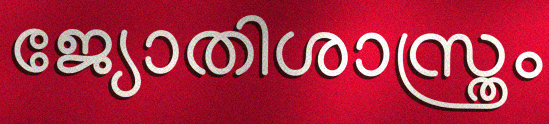
ജ്യോതിശാസ്ത്രം